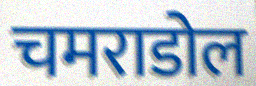
चमराडोल